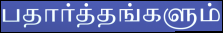
பதார்த்தங்களும்